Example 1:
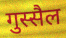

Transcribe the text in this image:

गुस्सैल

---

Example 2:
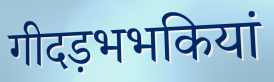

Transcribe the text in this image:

गीदड़भभकियां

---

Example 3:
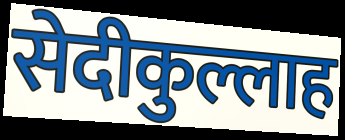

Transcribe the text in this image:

सेदीकुल्लाह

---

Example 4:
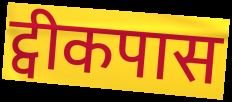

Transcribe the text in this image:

ट्वीकपास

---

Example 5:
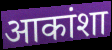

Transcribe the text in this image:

आकांशा